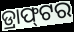
ଡ୍ରାଫ୍‌ଟର